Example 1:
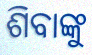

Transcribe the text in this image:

ଶିବାଙ୍କୁ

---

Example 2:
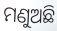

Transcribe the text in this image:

ମଣୁଅଛି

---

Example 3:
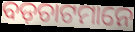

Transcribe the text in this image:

ବଡ଼ଚାଟମାନେ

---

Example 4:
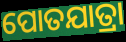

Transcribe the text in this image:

ପୋତଯାତ୍ରା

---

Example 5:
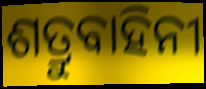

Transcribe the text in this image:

ଶତ୍ରୁବାହିନୀ